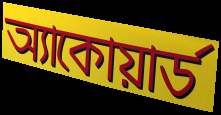
অ্যাকোয়ার্ড